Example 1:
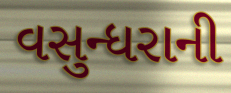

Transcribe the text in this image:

વસુન્ધરાની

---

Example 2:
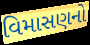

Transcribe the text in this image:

વિમાસણનો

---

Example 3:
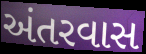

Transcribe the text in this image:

અંતરવાસ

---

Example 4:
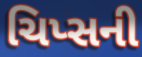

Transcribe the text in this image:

ચિપ્સની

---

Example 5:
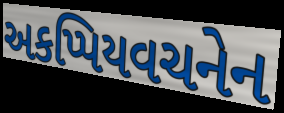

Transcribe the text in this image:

અકપ્પિયવચનેન